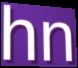
hn